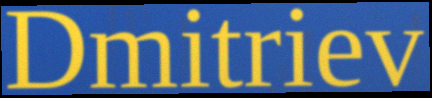
Dmitriev